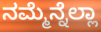
ನಮ್ಮೆನ್ನೆಲ್ಲಾ